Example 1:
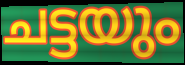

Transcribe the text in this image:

ചട്ടയും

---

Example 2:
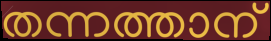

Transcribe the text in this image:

തന്നത്താന്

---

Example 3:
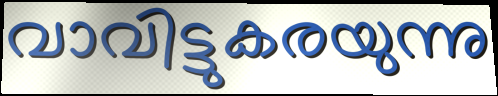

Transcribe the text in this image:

വാവിട്ടുകരയുന്നു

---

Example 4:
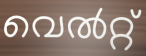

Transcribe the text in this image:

വെൽറ്റ്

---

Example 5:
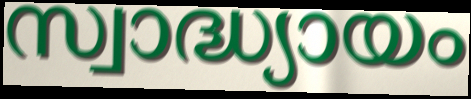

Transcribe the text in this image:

സ്വാദ്ധ്യായം